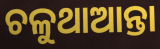
ଚଳୁଥାଆନ୍ତା